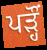
ਪੜ੍ਹੌਂ